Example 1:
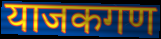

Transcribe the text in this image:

याजकगण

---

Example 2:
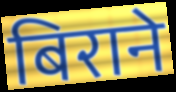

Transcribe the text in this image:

बिराने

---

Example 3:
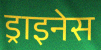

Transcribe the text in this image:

ड्राइनेस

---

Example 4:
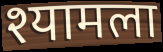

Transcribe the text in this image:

श्यामला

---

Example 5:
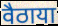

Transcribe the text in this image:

वैठाया